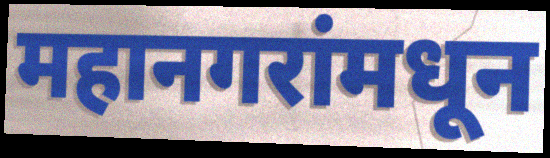
महानगरांमधून